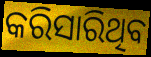
କରିସାରିଥିବ